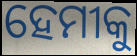
ହେମୀକୁ